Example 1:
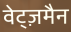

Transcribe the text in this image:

वेट्ज़मैन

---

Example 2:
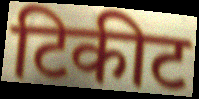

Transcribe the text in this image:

टिकीट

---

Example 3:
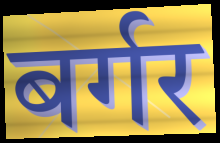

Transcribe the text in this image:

बर्गर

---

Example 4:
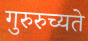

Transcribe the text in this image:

गुरुरुच्यते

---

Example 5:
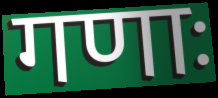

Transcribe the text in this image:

गणाः